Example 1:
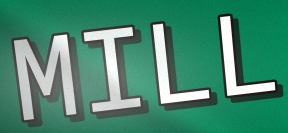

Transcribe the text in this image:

MILL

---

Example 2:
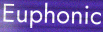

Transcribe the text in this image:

Euphonic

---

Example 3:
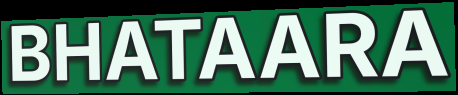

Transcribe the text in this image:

BHATAARA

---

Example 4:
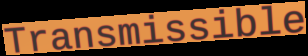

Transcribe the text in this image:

Transmissible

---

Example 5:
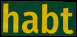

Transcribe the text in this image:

habt